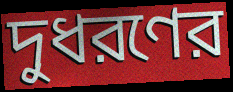
দুধরণের